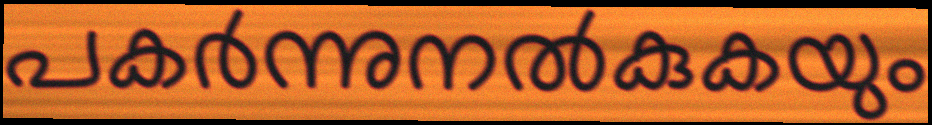
പകർന്നുനൽകുകയും